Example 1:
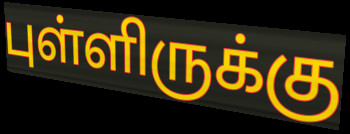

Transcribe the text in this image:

புள்ளிருக்கு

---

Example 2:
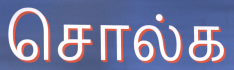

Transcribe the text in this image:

சொல்க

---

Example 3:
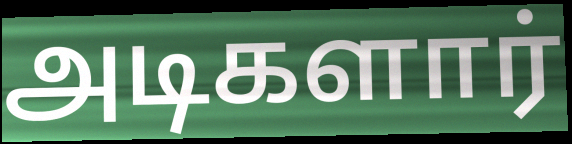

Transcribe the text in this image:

அடிகளார்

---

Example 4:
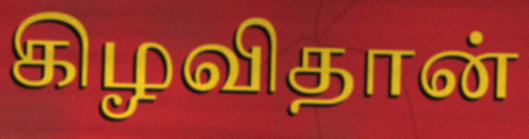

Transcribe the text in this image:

கிழவிதான்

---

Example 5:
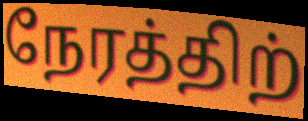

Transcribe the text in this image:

நேரத்திற்